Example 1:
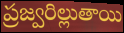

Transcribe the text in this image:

ప్రజ్వరిల్లుతాయి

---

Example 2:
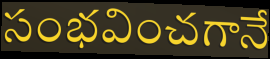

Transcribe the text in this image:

సంభవించగానే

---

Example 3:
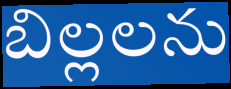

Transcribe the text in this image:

బిల్లలను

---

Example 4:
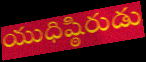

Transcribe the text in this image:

యుధిష్ఠిరుడు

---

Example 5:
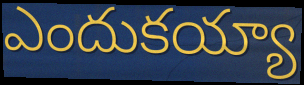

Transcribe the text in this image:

ఎందుకయ్యా